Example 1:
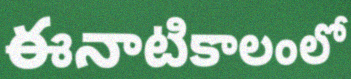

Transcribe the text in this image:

ఈనాటికాలంలో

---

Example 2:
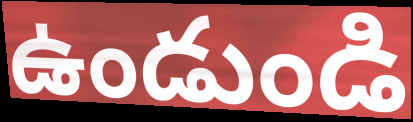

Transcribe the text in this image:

ఉండుండి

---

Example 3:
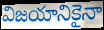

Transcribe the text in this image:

విజయానికైనా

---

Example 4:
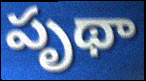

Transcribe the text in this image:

పృథా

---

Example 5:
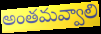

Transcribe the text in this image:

అంతమవ్వాలి